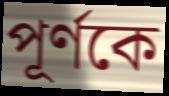
পূর্ণকে